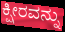
ಕ್ಷೀರವನ್ನು